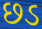
છડ